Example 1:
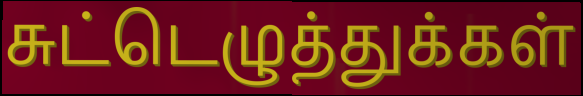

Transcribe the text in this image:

சுட்டெழுத்துக்கள்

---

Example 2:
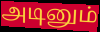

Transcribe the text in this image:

அடினும்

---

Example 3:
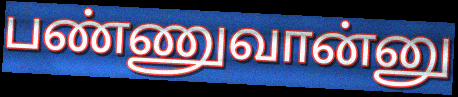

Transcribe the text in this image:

பண்ணுவான்னு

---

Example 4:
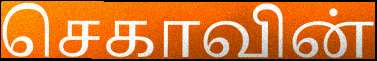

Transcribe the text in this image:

செகாவின்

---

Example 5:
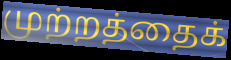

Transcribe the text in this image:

முற்றத்தைக்